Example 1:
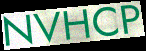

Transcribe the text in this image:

NVHCP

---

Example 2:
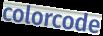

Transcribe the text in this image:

colorcode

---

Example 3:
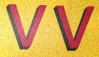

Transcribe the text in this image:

vv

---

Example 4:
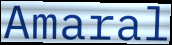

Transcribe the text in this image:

Amaral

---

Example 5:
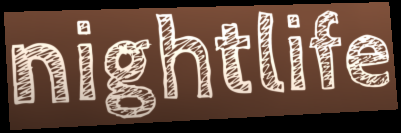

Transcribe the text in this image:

nightlife